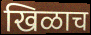
खिळाच